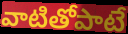
వాటితోపాటే